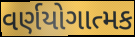
વર્ણયોગાત્મક